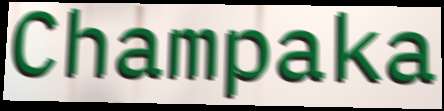
Champaka